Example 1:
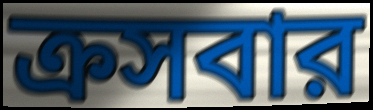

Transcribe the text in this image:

ক্রসবার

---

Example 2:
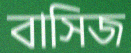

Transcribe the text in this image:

বাসিজ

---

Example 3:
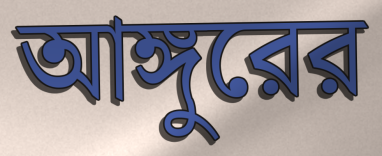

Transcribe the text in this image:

আঙ্গুরের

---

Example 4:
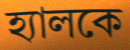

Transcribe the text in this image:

হ্যালকে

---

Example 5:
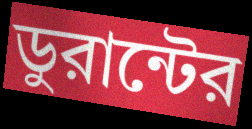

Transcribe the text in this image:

ডুরান্টের